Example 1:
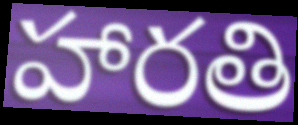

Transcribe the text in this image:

హారతి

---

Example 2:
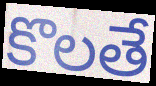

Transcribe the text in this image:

కొలతే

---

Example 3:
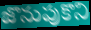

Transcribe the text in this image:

జొనుపుకొని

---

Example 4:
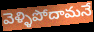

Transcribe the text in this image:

వెళ్ళిపోదామనే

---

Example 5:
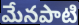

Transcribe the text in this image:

మేనపాటి